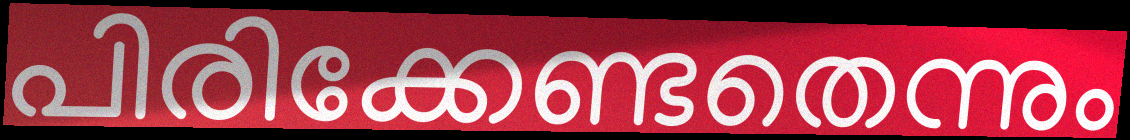
പിരിക്കേണ്ടതെന്നും